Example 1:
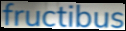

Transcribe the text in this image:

fructibus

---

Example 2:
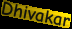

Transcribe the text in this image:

Dhivakar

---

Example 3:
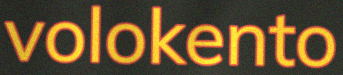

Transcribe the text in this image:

volokento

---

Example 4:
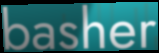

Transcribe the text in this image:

basher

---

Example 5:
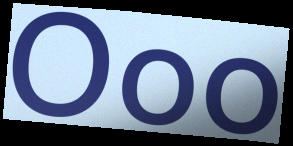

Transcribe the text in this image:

Ooo